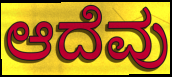
ಆದೆವು